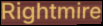
Rightmire